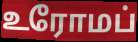
உரோமப்